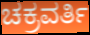
ಚಕ್ರವರ್ತಿ